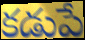
కడుపే